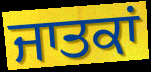
ਜਾਤਕਾਂ